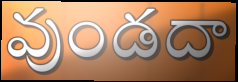
వుండదా